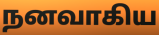
நனவாகிய